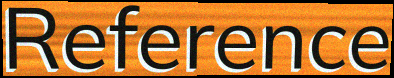
Reference